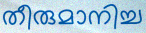
തീരുമാനിച്ച